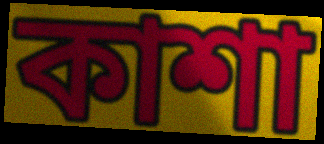
কাশা